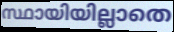
സ്ഥായിയില്ലാതെ